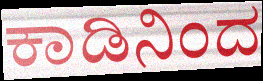
ಕಾಡಿನಿಂದ